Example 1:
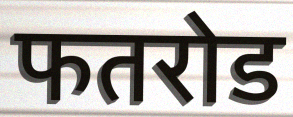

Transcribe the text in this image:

फतरोड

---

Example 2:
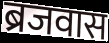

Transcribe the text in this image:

ब्रजवास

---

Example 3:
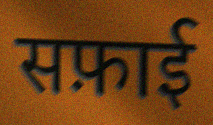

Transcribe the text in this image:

सफ़ाई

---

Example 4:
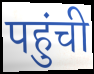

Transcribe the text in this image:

पहुंची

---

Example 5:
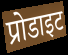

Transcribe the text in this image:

प्रोडाइट